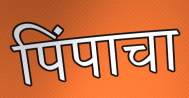
पिंपाचा